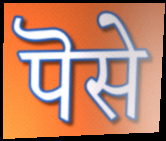
पॆसे